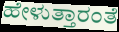
ಹೇಳುತ್ತಾರಂತೆ